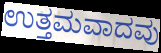
ಉತ್ತಮವಾದವು